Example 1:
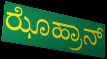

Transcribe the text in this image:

ಝೊಹ್ರಾನ್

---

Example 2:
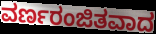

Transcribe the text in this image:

ವರ್ಣರಂಜಿತವಾದ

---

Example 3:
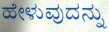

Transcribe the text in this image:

ಹೇಳುವುದನ್ನು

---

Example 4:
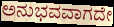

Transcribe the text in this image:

ಅನುಭವವಾಗದೇ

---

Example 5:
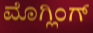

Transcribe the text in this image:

ಮೊಗ್ಲಿಂಗ್